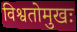
विश्वतोमुखः